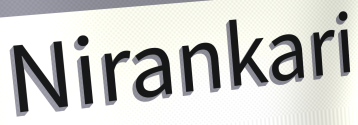
Nirankari